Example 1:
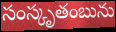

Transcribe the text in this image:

సంస్కృతంబును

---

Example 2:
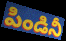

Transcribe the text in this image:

పిండినీ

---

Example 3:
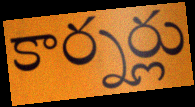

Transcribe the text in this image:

కార్నర్లు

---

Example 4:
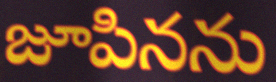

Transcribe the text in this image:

జూపినను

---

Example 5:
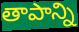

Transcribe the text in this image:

తాపాన్ని